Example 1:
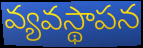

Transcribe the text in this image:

వ్యవస్థాపన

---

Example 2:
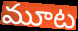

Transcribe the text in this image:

మూట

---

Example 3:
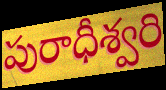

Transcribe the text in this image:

పురాధీశ్వరి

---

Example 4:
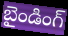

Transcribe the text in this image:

బైండింగ్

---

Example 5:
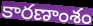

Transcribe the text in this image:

కారణాంశం